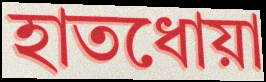
হাতধোয়া